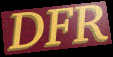
DFR